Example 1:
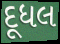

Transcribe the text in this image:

દૂધલ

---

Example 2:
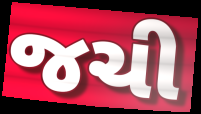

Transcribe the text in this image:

જચી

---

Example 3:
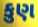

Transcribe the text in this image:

કુણ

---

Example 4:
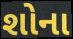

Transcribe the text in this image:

શોના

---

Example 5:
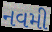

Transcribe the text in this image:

નવમી